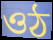
ওঠ